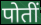
पोतीं